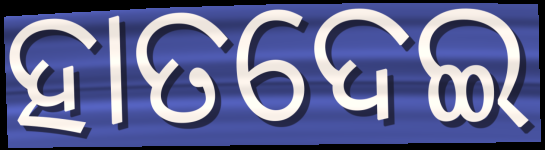
ହାତଦେଇ